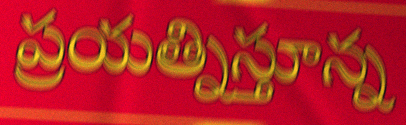
ప్రయత్నిస్తూన్న